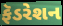
ફૅડરેશન